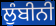
ਲੁੰਬੀਨੀ